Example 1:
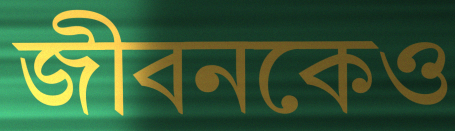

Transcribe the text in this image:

জীবনকেও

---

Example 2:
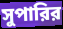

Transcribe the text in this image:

সুপারির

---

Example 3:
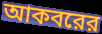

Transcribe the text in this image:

আকবরের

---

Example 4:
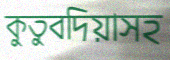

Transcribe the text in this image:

কুতুবদিয়াসহ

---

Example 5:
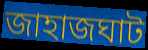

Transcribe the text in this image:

জাহাজঘাট